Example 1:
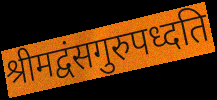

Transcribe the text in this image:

श्रीमद्वंसगुरुपध्दति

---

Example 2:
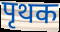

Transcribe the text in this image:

पृथक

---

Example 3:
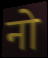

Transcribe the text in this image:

नो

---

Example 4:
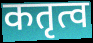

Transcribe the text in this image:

कतृत्व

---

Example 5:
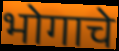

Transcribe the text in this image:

भोगाचे